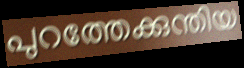
പുറത്തേക്കുന്തിയ